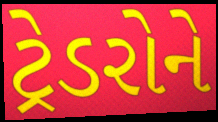
ટ્રેડરોને